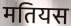
मतियस